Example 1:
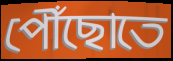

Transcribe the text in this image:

পৌঁছোতে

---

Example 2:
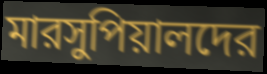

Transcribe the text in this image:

মারসুপিয়ালদের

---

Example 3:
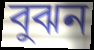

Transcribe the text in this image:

বুঝন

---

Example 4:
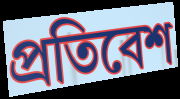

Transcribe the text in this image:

প্রতিবেশ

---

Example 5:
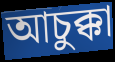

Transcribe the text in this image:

আচুক্কা